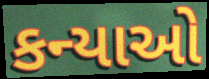
કન્યાઓ